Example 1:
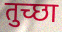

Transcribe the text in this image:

तुच्छा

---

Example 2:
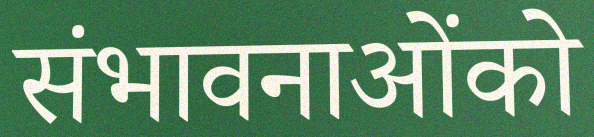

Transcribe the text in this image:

संभावनाओंको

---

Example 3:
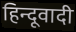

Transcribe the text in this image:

हिन्दूवादी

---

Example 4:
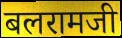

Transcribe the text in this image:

बलरामजी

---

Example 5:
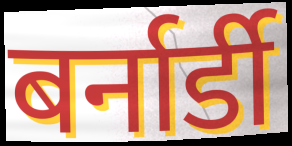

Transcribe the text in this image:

बर्नार्डी